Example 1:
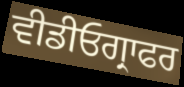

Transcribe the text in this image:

ਵੀਡੀਓਗ੍ਰਾਫਰ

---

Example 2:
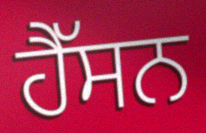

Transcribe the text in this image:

ਹੈੱਸਨ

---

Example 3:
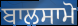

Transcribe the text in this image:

ਬਾਲਸਾਮੋ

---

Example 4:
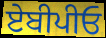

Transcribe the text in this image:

ਏਬੀਪੀਓ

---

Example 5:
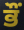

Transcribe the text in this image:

ਭੌਂ